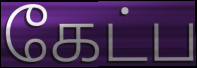
கேட்ப